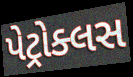
પેટ્રોક્લસ